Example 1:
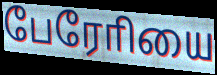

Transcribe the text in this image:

பேரேரியை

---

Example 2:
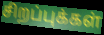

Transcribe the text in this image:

சிறப்புக்கள்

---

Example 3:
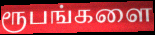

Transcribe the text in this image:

ரூபங்களை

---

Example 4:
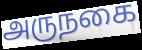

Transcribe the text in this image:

அருநகை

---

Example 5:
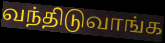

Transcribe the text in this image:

வந்திடுவாங்க